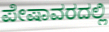
ಪೇಷಾವರದಲ್ಲಿ